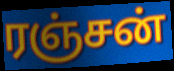
ரஞ்சன்